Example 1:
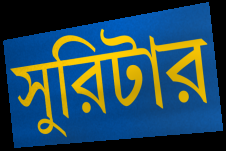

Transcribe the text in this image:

সুরিটার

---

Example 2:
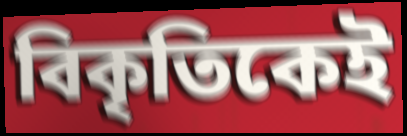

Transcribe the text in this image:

বিকৃতিকেই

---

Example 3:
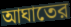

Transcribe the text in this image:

আঘাতের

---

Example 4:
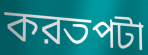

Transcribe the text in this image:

করতপটা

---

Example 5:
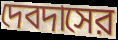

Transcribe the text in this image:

দেবদাসের